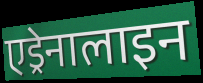
एड्रेनालाइन